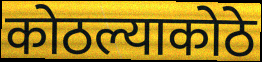
कोठल्याकोठे